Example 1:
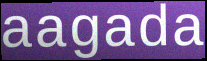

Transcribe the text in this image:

aagada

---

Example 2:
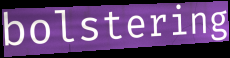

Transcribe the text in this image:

bolstering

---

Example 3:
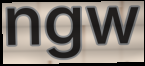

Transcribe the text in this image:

ngw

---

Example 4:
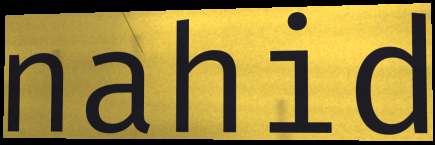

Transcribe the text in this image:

nahid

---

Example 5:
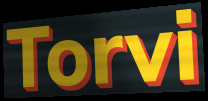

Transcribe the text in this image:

Torvi